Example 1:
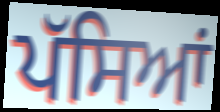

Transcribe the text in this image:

ਪੱਸਿਆਂ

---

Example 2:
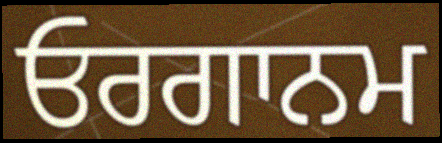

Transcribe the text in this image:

ਓਰਗਾਨਮ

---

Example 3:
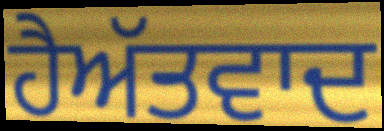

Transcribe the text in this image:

ਹੈਅੱਤਵਾਦ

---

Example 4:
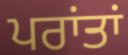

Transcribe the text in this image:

ਪਰਾਂਤਾਂ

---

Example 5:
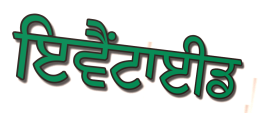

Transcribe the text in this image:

ਇਵੈਂਟਾਈਡ